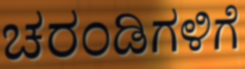
ಚರಂಡಿಗಳಿಗೆ